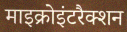
माइक्रोइंटरैक्शन